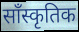
साँस्कृतिक